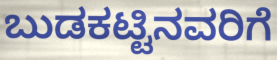
ಬುಡಕಟ್ಟಿನವರಿಗೆ